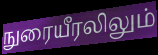
நுரையீரலிலும்